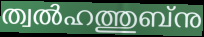
ത്വൽഹത്തുബ്നു